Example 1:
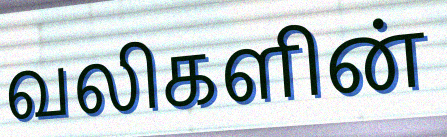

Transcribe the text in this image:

வலிகளின்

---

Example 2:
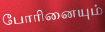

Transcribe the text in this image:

போரினையும்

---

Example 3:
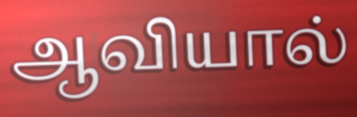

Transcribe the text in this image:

ஆவியால்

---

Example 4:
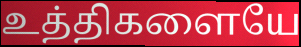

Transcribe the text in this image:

உத்திகளையே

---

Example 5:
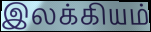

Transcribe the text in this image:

இலக்கியம்